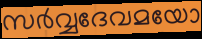
സർവ്വദേവമയോ